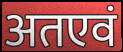
अतएवं